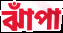
ঝাঁপা